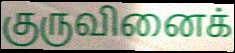
குருவினைக்